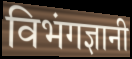
विभंगज्ञानी